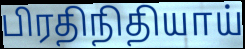
பிரதிநிதியாய்